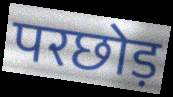
परछोड़